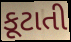
કૂટાતી